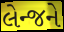
લેન્જને